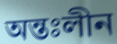
অন্তঃলীন